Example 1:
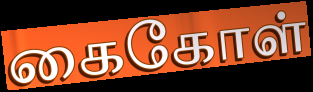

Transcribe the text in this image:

கைகோள்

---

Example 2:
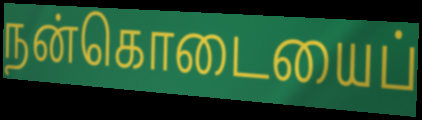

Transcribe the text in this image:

நன்கொடையைப்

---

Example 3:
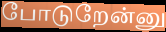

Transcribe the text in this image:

போடுறேன்னு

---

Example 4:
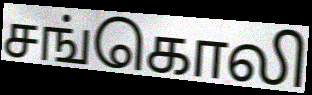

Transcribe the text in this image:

சங்கொலி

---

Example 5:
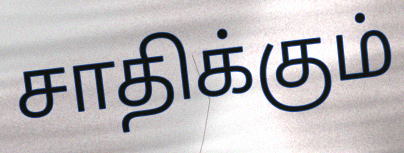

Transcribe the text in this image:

சாதிக்கும்